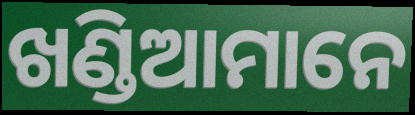
ଖଣ୍ଡିଆମାନେ